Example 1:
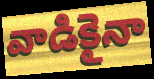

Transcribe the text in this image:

వాడికైనా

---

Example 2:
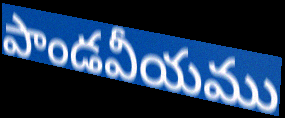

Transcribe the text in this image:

పాండవీయము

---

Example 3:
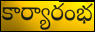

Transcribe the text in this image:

కార్యారంభ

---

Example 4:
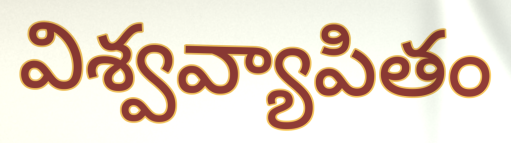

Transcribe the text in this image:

విశ్వవ్యాపితం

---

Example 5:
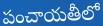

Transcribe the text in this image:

పంచాయతీలో